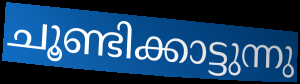
ചൂണ്ടിക്കാട്ടുന്നു